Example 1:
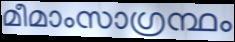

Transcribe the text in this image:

മീമാംസാഗ്രന്ഥം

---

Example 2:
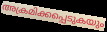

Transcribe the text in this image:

അക്രമിക്കപ്പെടുകയും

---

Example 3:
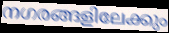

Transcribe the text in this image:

നഗരങ്ങളിലേക്കും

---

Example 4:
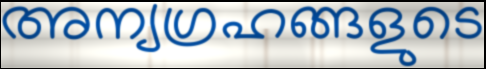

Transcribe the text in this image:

അന്യഗ്രഹങ്ങളുടെ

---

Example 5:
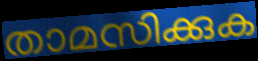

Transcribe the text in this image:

താമസിക്കുക